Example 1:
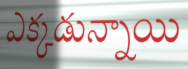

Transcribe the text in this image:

ఎక్కడున్నాయి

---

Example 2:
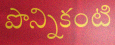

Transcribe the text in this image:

పొన్నికంటి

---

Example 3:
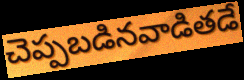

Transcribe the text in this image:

చెప్పబడినవాడితడే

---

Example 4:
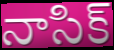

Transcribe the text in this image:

నాసిక్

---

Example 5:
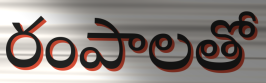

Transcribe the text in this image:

రంపాలతో